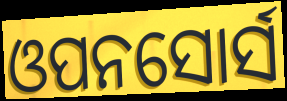
ଓପନସୋର୍ସ